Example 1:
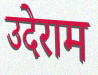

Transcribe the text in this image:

उदेराम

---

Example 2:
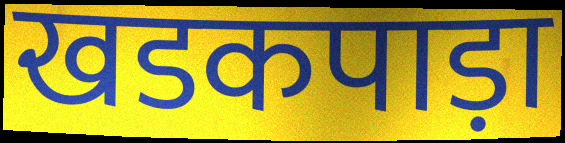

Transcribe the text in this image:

खडकपाड़ा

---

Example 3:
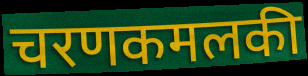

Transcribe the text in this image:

चरणकमलकी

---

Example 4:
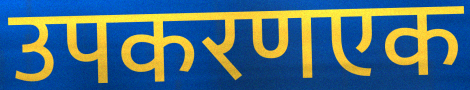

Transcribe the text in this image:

उपकरणएक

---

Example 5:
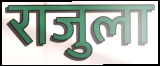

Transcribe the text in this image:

राजुला